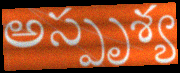
అస్పృశ్య